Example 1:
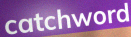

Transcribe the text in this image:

catchword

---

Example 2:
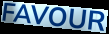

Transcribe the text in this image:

FAVOUR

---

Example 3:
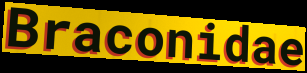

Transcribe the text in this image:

Braconidae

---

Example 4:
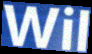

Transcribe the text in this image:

Wil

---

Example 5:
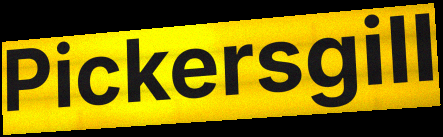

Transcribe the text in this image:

Pickersgill